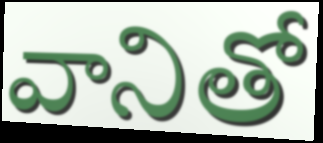
వానితో